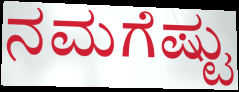
ನಮಗೆಷ್ಟು